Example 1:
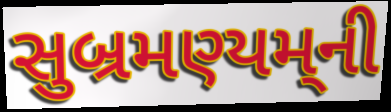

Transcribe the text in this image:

સુબ્રમણ્યમ્‌ની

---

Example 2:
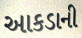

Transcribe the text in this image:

આકડાની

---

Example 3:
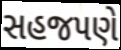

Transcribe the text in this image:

સહજપણે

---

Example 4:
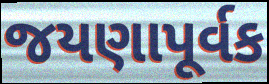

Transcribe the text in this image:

જયણાપૂર્વક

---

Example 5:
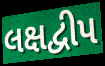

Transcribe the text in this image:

લક્ષદ્વીપ